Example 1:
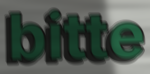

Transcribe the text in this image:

bitte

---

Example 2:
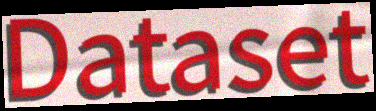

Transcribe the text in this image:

Dataset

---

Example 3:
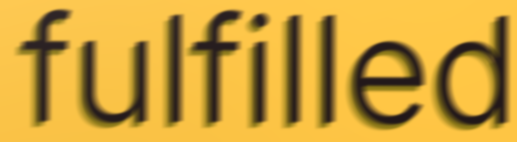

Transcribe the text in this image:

fulfilled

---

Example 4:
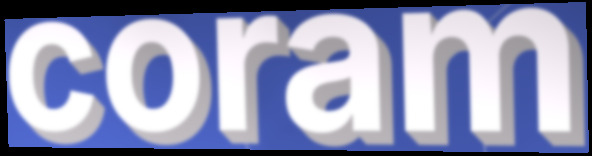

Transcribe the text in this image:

coram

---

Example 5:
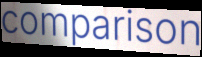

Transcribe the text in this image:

comparison